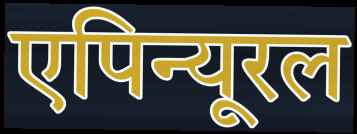
एपिन्यूरल